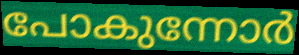
പോകുന്നോർ